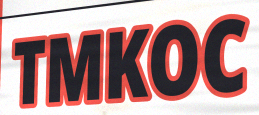
TMKOC